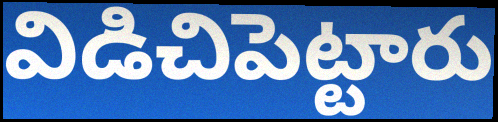
విడిచిపెట్టారు